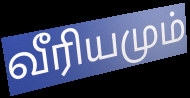
வீரியமும்